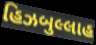
હિઝબુલ્લાહ